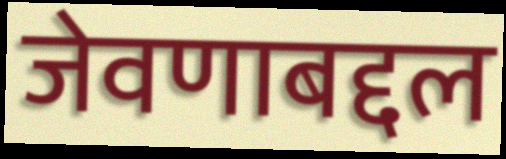
जेवणाबद्दल